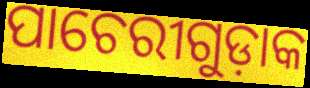
ପାଚେରୀଗୁଡ଼ାକ